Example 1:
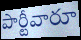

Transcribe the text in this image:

పార్టీవారూ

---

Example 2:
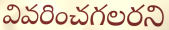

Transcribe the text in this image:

వివరించగలరని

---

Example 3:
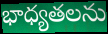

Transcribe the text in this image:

భాధ్యతలను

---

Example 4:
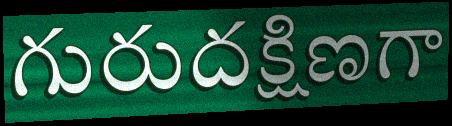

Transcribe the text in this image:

గురుదక్షిణగా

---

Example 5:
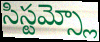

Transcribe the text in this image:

సిస్టమ్స్లో